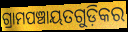
ଗ୍ରାମପଞ୍ଚାୟତଗୁଡ଼ିକର